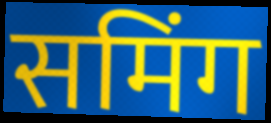
समिंग